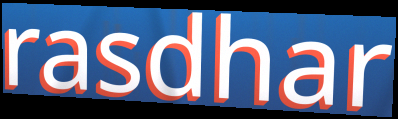
rasdhar